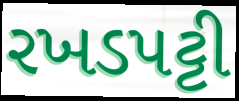
રખડપટ્ટી